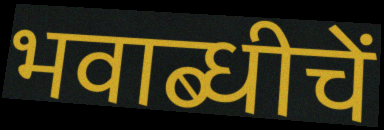
भवाब्धीचें